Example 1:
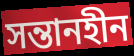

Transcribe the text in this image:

সন্তানহীন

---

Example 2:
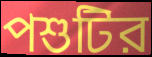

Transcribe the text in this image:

পশুটির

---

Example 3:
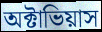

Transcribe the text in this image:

অক্টাভিয়াস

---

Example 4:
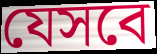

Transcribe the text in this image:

যেসবে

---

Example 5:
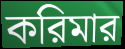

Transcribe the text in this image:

করিমার